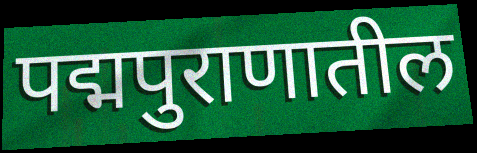
पद्मपुराणातील